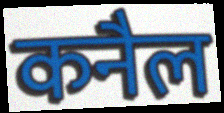
कनैल